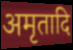
अमृतादि